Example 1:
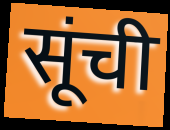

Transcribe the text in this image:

सूंची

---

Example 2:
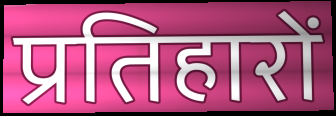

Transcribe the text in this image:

प्रतिहारों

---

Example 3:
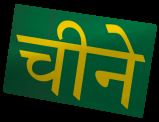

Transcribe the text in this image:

चीने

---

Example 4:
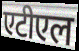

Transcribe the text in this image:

एटीएल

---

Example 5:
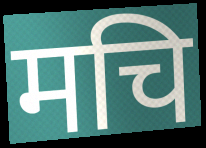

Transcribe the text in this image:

मचि